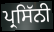
ਪ੍ਰਸਿੱਨੀ